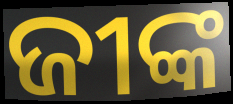
ଜୀଙ୍କ